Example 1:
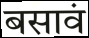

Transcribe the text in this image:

बसावं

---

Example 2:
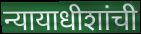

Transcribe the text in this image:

न्यायाधीशांची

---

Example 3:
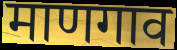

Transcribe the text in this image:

माणगाव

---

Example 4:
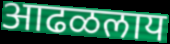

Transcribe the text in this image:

आढळलाय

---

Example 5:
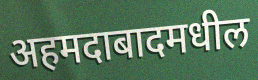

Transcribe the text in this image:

अहमदाबादमधील